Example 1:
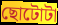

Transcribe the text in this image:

ছোটোটা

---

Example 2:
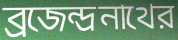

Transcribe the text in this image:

ব্রজেন্দ্রনাথের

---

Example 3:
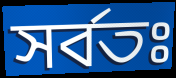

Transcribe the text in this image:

সর্বতঃ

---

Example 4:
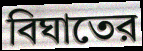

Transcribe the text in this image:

বিঘাতের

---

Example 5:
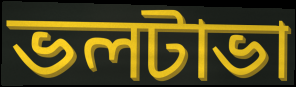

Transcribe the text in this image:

ভলটাভা